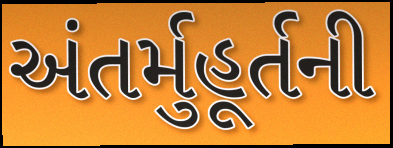
અંતર્મુહૂર્તની